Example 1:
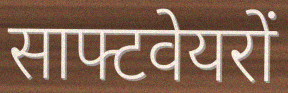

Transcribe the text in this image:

साफ्टवेयरों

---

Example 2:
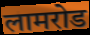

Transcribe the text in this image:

लामरोड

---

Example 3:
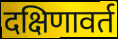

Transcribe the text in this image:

दक्षिणावर्त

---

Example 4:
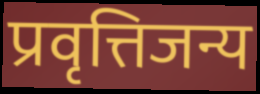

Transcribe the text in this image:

प्रवृत्तिजन्य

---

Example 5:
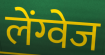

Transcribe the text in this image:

लेंग्वेज